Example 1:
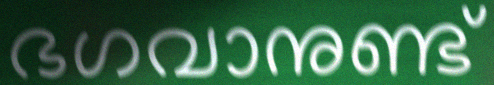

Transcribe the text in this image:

ഭഗവാനുണ്ട്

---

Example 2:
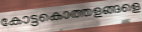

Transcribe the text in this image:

കോട്ടകൊത്തളങ്ങളെ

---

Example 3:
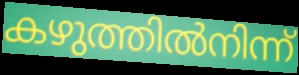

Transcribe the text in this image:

കഴുത്തിൽനിന്ന്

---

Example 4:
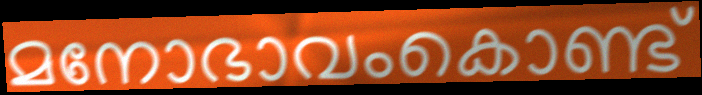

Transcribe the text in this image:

മനോഭാവംകൊണ്ട്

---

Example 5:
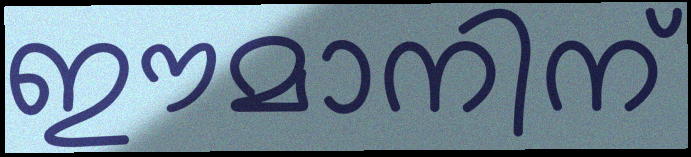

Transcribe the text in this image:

ഈമാനിന്